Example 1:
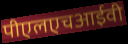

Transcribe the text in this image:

पीएलएचआईवी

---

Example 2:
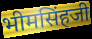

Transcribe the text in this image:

भीमसिंहजी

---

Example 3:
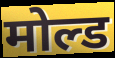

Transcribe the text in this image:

मोल्ड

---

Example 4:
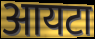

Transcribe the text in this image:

आयटा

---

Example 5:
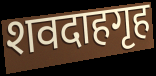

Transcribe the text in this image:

शवदाहगृह